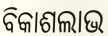
ବିକାଶଲାଭ